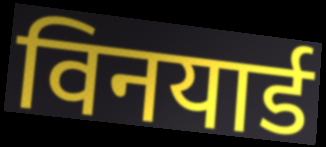
विनयार्ड